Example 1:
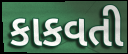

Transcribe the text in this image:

કાકવતી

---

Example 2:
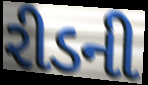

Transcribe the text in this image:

રીડની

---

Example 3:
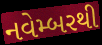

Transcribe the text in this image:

નવેમ્બરથી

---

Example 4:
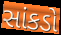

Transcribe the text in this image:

સાંકડો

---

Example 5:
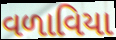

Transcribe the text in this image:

વળાવિયા